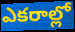
ఎకరాల్లో